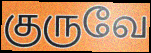
குருவே